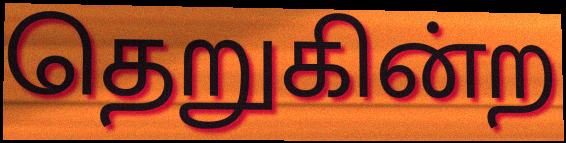
தெறுகின்ற